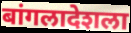
बांगलादेशला